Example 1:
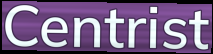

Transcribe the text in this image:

Centrist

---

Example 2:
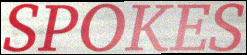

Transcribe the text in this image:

SPOKES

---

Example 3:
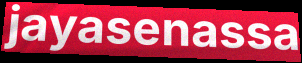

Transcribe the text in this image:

jayasenassa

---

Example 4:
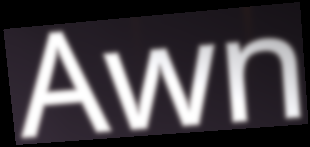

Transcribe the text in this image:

Awn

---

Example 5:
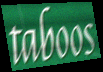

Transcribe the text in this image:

taboos